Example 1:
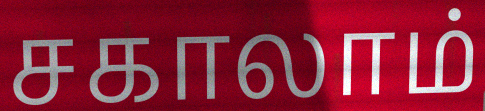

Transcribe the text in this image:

சகாலாம்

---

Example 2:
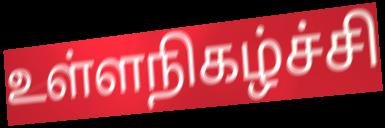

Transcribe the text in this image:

உள்ளநிகழ்ச்சி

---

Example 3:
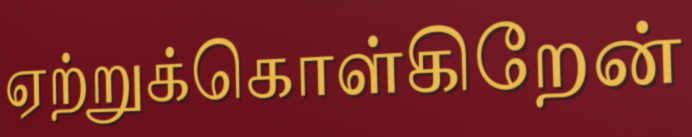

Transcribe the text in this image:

ஏற்றுக்கொள்கிறேன்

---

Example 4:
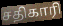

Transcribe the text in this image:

சதிகாரி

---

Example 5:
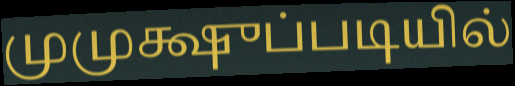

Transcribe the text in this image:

முமுக்ஷுப்படியில்